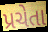
પ્રચેતા